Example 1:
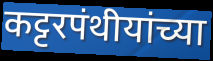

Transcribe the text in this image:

कट्टरपंथीयांच्या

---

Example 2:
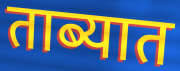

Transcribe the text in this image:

ताब्यात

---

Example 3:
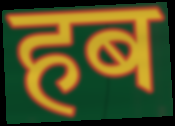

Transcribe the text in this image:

हब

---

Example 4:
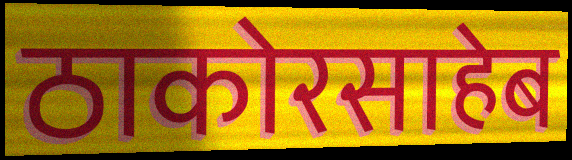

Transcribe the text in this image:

ठाकोरसाहेब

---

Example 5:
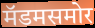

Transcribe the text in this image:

मॅडमसमोर